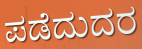
ಪಡೆದುದರ